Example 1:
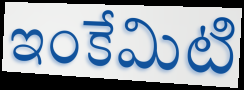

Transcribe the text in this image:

ఇంకేమిటి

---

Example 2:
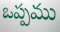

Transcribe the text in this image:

ఒప్పము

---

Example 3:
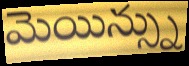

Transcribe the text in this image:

మెయిన్స్ను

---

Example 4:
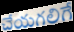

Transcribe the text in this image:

చేయగలిగే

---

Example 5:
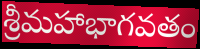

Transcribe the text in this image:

శ్రీమహాభాగవతం